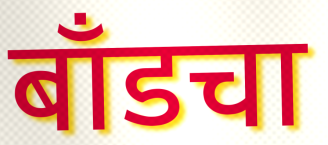
बाँडचा